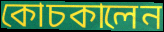
কোচকালেন